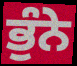
ਭੁੰਨੇ